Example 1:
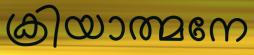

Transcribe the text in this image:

ക്രിയാത്മനേ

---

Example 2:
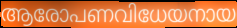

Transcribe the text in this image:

ആരോപണവിധേയനായ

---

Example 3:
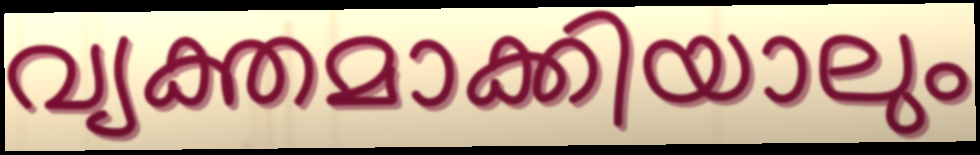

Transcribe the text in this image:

വ്യക്തമാക്കിയാലും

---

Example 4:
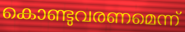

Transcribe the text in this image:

കൊണ്ടുവരണമെന്ന്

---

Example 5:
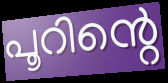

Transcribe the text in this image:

പൂറിന്റെ